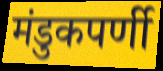
मंडुकपर्णी